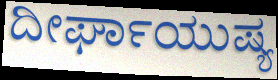
ದೀರ್ಘಾಯುಷ್ಯ